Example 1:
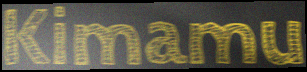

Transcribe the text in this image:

Kimamu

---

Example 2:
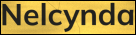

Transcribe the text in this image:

Nelcynda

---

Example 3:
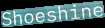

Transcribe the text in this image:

Shoeshine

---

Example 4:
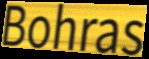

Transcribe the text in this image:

Bohras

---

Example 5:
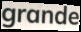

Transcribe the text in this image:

grande